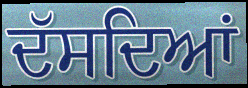
ਦੱਸਦਿਆਂ